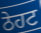
ਠੇਹਟ